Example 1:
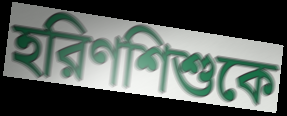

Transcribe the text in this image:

হরিণশিশুকে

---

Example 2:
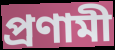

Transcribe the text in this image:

প্রণামী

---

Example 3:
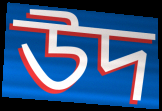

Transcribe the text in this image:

উদ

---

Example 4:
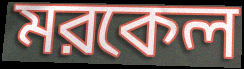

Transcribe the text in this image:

মরকেল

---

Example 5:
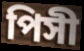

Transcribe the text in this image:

পিসী